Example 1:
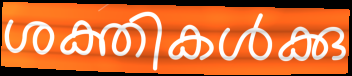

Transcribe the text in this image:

ശക്തികൾക്കു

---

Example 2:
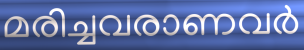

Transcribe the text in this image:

മരിച്ചവരാണവർ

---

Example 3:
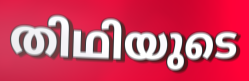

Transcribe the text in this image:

തിഥിയുടെ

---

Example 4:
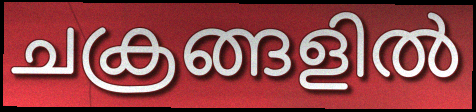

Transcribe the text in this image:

ചക്രങ്ങളിൽ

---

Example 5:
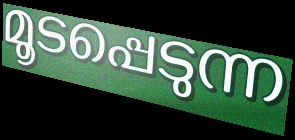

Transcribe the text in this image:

മൂടപ്പെടുന്ന